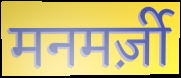
मनमर्ज़ी